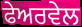
ਫੇਅਰਵੇਲ